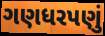
ગણધરપણું